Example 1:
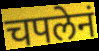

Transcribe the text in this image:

चपलेनं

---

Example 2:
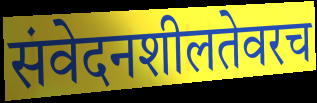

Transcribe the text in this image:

संवेदनशीलतेवरच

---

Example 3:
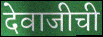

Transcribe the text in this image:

देवाजीची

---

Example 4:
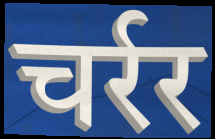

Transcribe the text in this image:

चर्रर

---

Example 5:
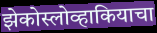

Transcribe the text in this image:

झेकोस्लोव्हाकियाचा